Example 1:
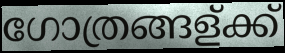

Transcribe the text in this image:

ഗോത്രങ്ങള്ക്ക്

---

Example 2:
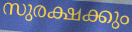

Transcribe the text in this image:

സുരക്ഷക്കും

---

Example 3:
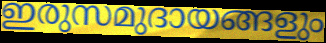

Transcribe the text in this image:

ഇരുസമുദായങ്ങളും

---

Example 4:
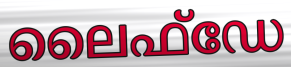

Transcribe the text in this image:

ലൈഫ്ഡേ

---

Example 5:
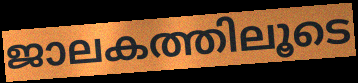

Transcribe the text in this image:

ജാലകത്തിലൂടെ